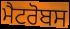
ਮੈਟਰੋਬਸ